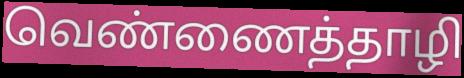
வெண்ணைத்தாழி